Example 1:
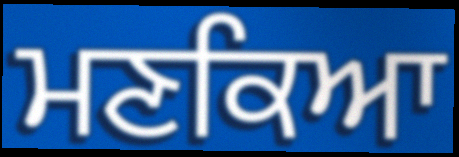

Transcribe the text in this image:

ਮਣਕਿਆ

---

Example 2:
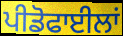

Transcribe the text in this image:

ਪੀਡੋਫਾਈਲਾਂ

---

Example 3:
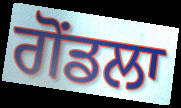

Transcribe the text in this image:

ਗੋਂਡਲਾ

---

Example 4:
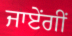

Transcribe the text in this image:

ਜਾਏਂਗੀਂ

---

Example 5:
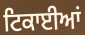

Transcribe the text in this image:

ਟਿਕਾਈਆਂ